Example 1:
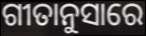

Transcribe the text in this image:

ଗୀତାନୁସାରେ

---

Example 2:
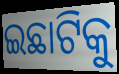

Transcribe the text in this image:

ଇଛାଟିକୁ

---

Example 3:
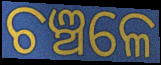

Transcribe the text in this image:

ଚଞ୍ଚଳେ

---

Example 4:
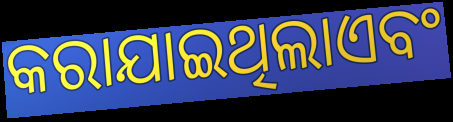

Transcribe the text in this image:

କରାଯାଇଥିଲାଏବଂ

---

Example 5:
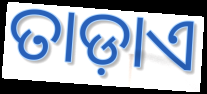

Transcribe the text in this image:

ତାଡ଼ାଏ